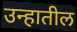
उन्हातील